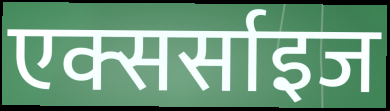
एक्सर्साइज